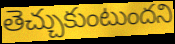
తెచ్చుకుంటుందని